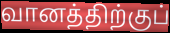
வானத்திற்குப்